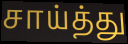
சாய்த்து